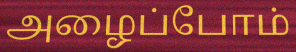
அழைப்போம்